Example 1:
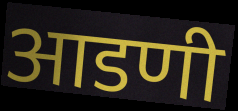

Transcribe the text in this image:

आडणी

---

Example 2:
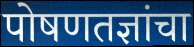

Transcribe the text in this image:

पोषणतज्ञांचा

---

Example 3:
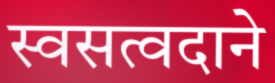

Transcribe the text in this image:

स्वसत्वदाने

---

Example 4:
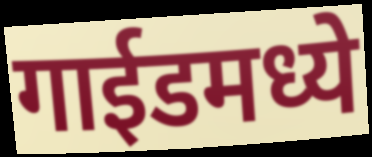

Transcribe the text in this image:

गाईडमध्ये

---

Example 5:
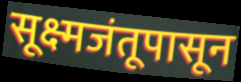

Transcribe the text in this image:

सूक्ष्मजंतूपासून